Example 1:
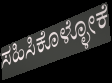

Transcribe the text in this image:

ಸಹಿಸಿಕೊಳ್ಳೋಕೆ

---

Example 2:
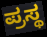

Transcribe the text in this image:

ಪ್ರಸ್ಥ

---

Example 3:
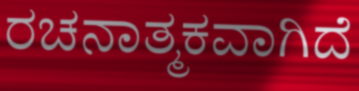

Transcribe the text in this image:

ರಚನಾತ್ಮಕವಾಗಿದೆ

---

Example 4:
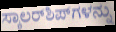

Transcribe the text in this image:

ಸ್ಕಾಲರ್‌ಶಿಪ್‌ಗಳನ್ನು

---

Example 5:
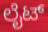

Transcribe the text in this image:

ಲೈಟ್